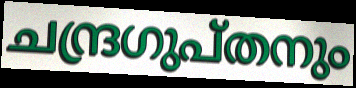
ചന്ദ്രഗുപ്തനും